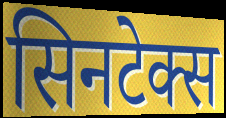
सिनटेक्स